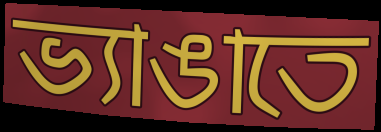
ভ্যাঙাতে